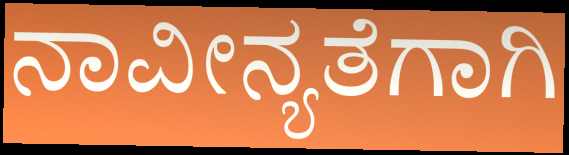
ನಾವೀನ್ಯತೆಗಾಗಿ